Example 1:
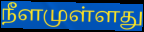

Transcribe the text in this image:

நீளமுள்ளது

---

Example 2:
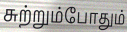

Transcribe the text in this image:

சுற்றும்போதும்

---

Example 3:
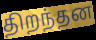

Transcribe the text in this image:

திறந்தன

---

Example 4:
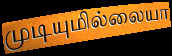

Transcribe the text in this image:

முடியுமில்லையா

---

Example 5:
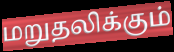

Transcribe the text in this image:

மறுதலிக்கும்